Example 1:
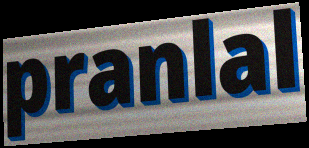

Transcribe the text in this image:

pranlal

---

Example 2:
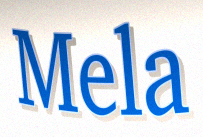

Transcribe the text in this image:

Mela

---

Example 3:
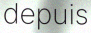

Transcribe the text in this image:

depuis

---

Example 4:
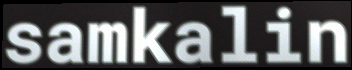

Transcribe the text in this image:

samkalin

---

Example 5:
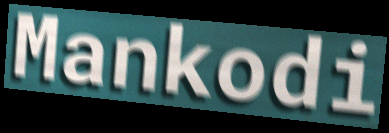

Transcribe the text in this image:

Mankodi